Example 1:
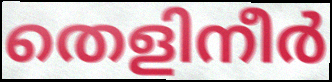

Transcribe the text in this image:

തെളിനീർ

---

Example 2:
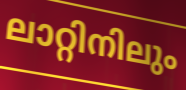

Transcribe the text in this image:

ലാറ്റിനിലും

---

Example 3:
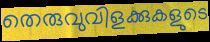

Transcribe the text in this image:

തെരുവുവിളക്കുകളുടെ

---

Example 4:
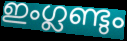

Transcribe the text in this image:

ഇംഗ്ലണ്ടും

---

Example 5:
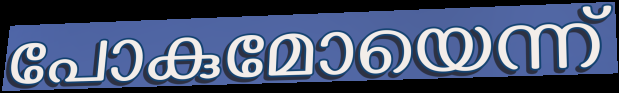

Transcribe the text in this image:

പോകുമോയെന്ന്